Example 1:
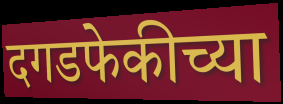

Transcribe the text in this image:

दगडफेकीच्या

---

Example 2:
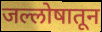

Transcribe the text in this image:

जल्लोषातून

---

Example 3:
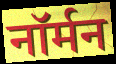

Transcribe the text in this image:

नॉर्मन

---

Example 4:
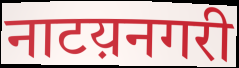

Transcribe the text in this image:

नाटय़नगरी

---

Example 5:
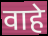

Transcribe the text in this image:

वाहे